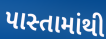
પાસ્તામાંથી